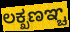
ಲಕ್ಖಣಞ್ಚ